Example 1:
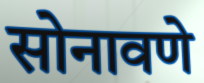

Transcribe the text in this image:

सोनावणे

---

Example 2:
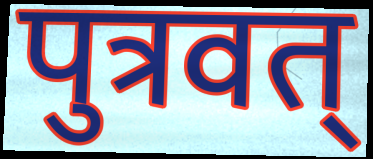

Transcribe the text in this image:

पुत्रवत्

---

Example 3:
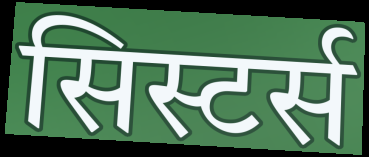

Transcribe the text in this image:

सिस्टर्स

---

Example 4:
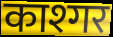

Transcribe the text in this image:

काश्गर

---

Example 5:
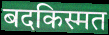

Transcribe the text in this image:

बदकिस्मत